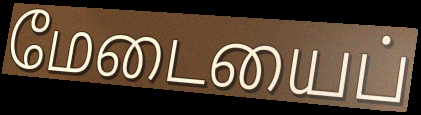
மேடையைப்